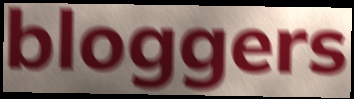
bloggers